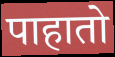
पाहातो